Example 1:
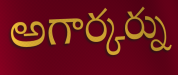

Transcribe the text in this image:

అగార్కర్ను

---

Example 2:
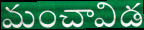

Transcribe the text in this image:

మంచావిడ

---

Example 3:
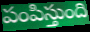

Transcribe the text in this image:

పంపిస్తుంది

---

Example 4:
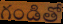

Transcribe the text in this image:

గండితో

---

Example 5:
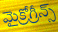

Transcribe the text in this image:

మైక్రోగ్రీన్స్